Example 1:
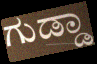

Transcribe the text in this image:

ಗುಡ್ಡಾ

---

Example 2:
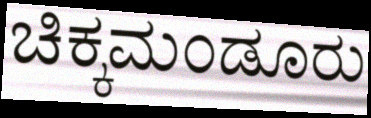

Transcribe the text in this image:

ಚಿಕ್ಕಮಂಡೂರು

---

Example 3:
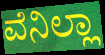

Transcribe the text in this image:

ವೆನಿಲ್ಲಾ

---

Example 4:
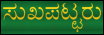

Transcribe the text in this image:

ಸುಖಪಟ್ಟರು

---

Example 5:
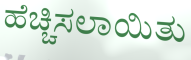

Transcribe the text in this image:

ಹೆಚ್ಚಿಸಲಾಯಿತು